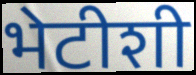
भेटीशी